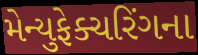
મેન્યુફેક્ચરિંગના